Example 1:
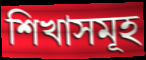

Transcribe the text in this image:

শিখাসমূহ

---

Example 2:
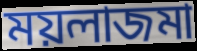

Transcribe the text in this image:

ময়লাজমা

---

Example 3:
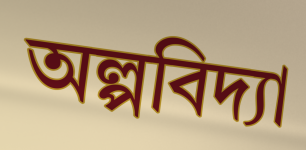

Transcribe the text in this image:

অল্পবিদ্যা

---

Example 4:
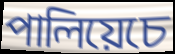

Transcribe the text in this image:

পালিয়েচে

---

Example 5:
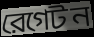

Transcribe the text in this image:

রেগেটন